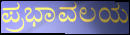
ಪ್ರಭಾವಲಯ